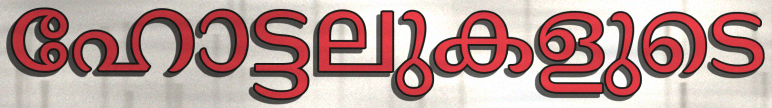
ഹോട്ടലുകളുടെ